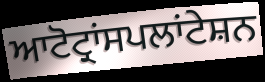
ਆਟੋਟ੍ਰਾਂਸਪਲਾਂਟੇਸ਼ਨ